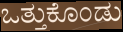
ಒತ್ತುಕೊಂಡು